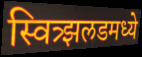
स्वित्र्झलडमध्ये